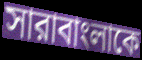
সারাবাংলাকে